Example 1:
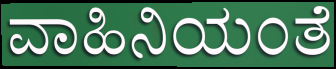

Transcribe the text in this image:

ವಾಹಿನಿಯಂತೆ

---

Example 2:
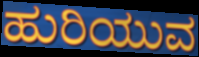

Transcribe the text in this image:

ಹುರಿಯುವ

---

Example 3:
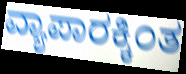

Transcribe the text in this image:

ವ್ಯಾಪಾರಕ್ಕಿಂತ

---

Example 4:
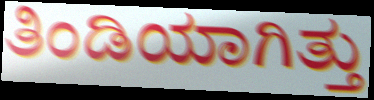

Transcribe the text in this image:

ತಿಂಡಿಯಾಗಿತ್ತು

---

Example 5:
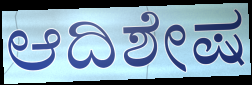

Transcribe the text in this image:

ಆದಿಶೇಷ